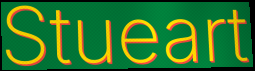
Stueart